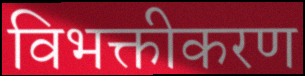
विभक्तीकरण